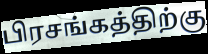
பிரசங்கத்திற்கு